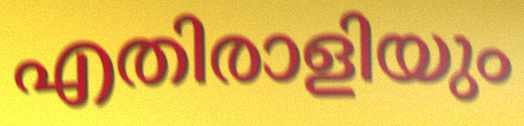
എതിരാളിയും